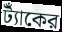
ট্যাঁকের